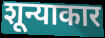
शून्याकार